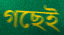
গছেই